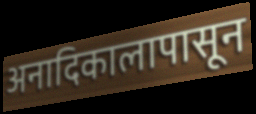
अनादिकालापासून